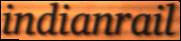
indianrail